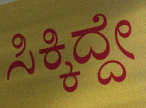
ಸಿಕ್ಕಿದ್ದೇ